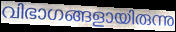
വിഭാഗങ്ങളായിരുന്നു